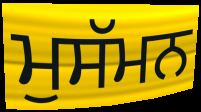
ਮੁਸੱਮਨ